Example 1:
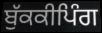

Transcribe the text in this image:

ਬੁੱਕਕੀਪਿੰਗ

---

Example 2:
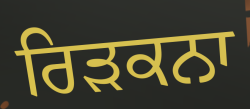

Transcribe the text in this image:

ਰਿੜਕਨਾ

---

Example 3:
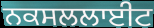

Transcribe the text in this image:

ਨਕਸਲਲਾਈਟ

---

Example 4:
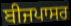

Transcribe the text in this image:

ਬੀਜਪਾਸਰ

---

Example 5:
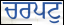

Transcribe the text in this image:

ਚਰਪਟੁ